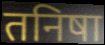
तनिषा